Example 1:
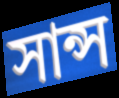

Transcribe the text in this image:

সান্স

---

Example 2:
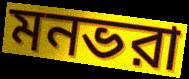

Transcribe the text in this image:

মনভরা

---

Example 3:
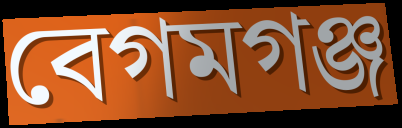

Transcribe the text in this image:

বেগমগঞ্জ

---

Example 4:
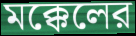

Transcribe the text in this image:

মক্কেলের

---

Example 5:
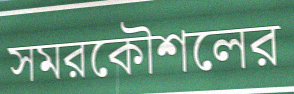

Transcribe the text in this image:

সমরকৌশলের